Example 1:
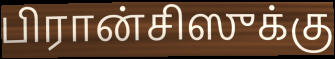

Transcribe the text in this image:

பிரான்சிஸுக்கு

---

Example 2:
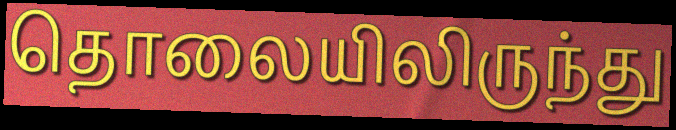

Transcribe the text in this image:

தொலையிலிருந்து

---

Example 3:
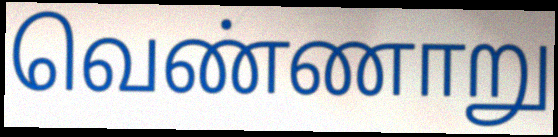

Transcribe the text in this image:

வெண்ணாறு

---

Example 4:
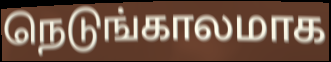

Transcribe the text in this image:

நெடுங்காலமாக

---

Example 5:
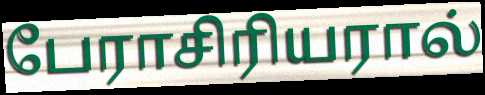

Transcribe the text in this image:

பேராசிரியரால்